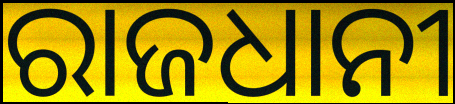
ରାଜଧାନୀ